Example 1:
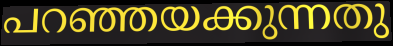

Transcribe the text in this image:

പറഞ്ഞയക്കുന്നതു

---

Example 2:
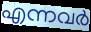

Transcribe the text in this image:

എന്നവർ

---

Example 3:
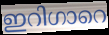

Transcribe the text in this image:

ഇറിഗാറെ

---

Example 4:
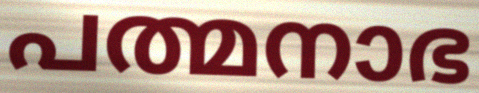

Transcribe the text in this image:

പത്മനാഭ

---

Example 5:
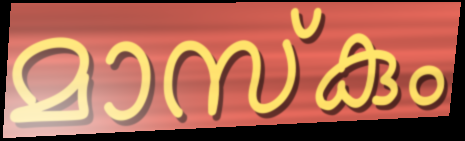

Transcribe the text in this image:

മാസ്കും